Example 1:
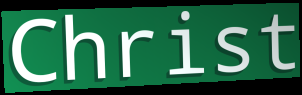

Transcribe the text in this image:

Christ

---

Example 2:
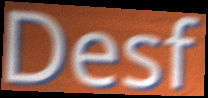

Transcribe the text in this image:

Desf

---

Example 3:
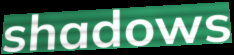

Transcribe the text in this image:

shadows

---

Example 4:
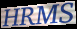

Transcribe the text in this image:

HRMS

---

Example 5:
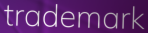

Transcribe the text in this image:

trademark